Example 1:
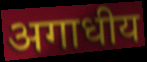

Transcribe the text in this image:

अगाधीय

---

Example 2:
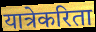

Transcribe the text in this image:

यात्रेकरिता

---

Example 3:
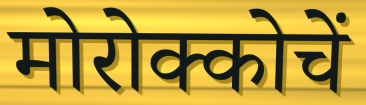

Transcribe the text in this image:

मोरोक्कोचें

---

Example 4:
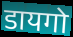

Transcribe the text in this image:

डायगो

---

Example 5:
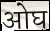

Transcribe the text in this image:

ओघ